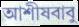
আশীষবাবু